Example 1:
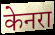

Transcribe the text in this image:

केनरा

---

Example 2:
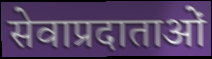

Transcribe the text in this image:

सेवाप्रदाताओं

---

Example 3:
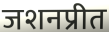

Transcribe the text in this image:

जशनप्रीत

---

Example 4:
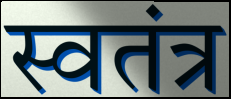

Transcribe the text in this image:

स्वतंत्र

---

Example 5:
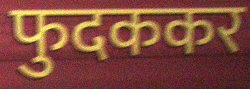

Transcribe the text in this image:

फुदककर